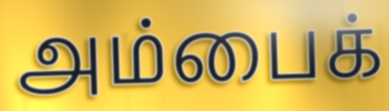
அம்பைக்